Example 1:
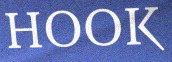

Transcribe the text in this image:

HOOK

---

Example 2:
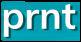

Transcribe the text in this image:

prnt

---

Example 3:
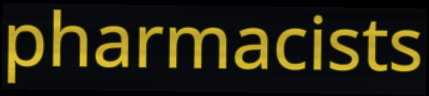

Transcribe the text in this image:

pharmacists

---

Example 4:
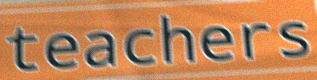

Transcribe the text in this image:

teachers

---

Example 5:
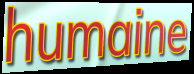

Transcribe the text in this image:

humaine